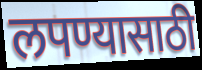
लपण्यासाठी